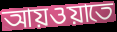
আয়ওয়াতে